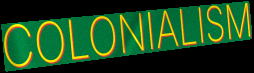
COLONIALISM